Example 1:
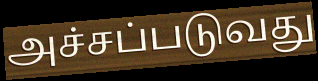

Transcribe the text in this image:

அச்சப்படுவது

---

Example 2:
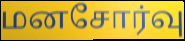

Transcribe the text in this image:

மனசோர்வு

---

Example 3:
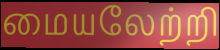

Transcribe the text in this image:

மையலேற்றி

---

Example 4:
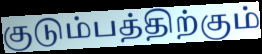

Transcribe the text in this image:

குடும்பத்திற்கும்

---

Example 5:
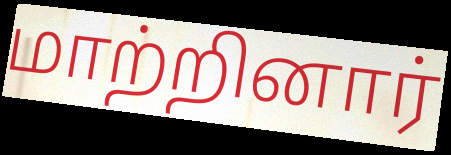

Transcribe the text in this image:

மாற்றினார்